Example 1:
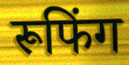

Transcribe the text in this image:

रूफिंग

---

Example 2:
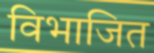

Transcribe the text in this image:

विभाजित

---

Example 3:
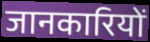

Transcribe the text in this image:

जानकारियों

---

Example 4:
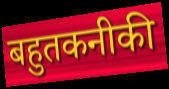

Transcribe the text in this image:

बहुतकनीकी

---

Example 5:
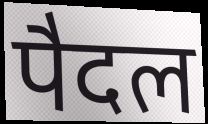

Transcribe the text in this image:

पैदल